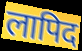
लापिद